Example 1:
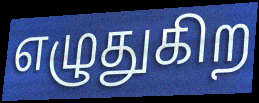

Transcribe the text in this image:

எழுதுகிற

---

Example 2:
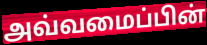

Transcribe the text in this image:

அவ்வமைப்பின்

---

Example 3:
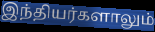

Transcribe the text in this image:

இந்தியர்களாலும்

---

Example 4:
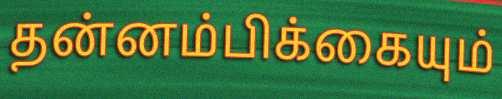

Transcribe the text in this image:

தன்னம்பிக்கையும்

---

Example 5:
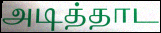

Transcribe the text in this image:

அடித்தாட